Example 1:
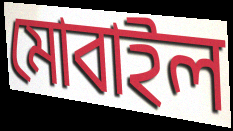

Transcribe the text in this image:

মোবাইল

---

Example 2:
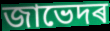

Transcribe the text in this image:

জাভেদৰ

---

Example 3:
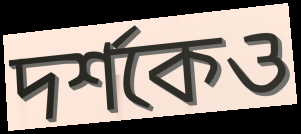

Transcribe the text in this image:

দৰ্শকেও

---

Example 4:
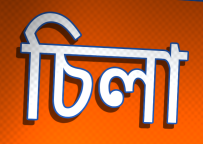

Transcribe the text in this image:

চিলা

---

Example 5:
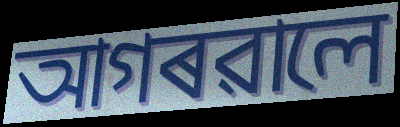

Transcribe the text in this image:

আগৰৱালে